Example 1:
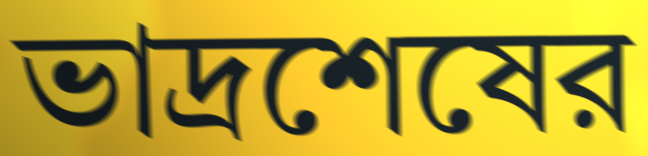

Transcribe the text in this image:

ভাদ্রশেষের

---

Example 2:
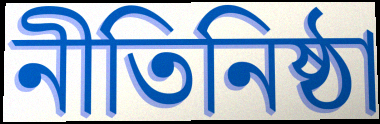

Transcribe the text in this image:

নীতিনিষ্ঠা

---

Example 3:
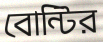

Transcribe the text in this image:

বোন্টির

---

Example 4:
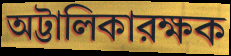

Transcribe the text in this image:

অট্টালিকারক্ষক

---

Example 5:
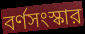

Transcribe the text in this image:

বর্ণসংস্কার